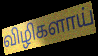
விழிகளாய்